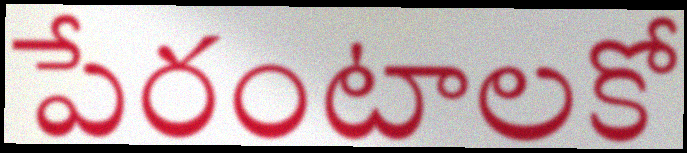
పేరంటాలకో